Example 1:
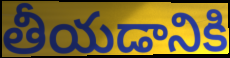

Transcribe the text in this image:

తీయడానికి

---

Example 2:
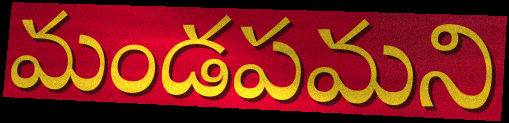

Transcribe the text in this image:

మండపమని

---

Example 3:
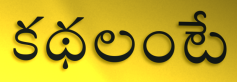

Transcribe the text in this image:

కథలంటే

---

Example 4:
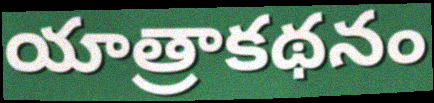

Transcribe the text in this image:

యాత్రాకథనం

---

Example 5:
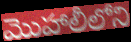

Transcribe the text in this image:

మొహాలీలోని